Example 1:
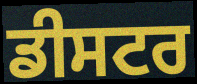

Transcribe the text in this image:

ਡੀਸਟਰ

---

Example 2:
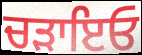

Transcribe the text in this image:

ਚੜਾਇਓ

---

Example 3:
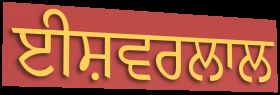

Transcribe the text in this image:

ਈਸ਼ਵਰਲਾਲ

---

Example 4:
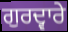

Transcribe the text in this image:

ਗੁਰਦ੍ਵਾਰੇ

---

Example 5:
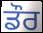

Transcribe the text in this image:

ਡੌਰ